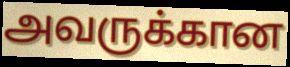
அவருக்கான